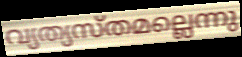
വ്യത്യസ്തമല്ലെന്നു